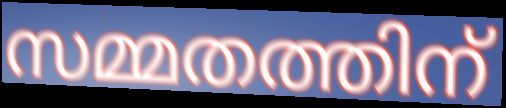
സമ്മതത്തിന്